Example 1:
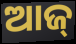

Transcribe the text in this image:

ଆଜ୍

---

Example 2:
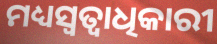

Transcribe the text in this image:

ମଧ୍ୟସ୍ୱତ୍ୱାଧିକାରୀ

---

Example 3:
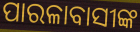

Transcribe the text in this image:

ପାରଳାବାସୀଙ୍କ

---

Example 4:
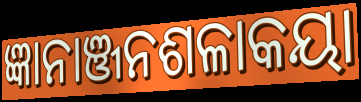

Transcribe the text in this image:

ଜ୍ଞାନାଞ୍ଜନଶଳାକୟା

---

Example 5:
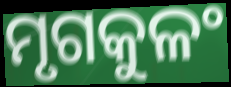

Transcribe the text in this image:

ମୃଗକୁଳଂ